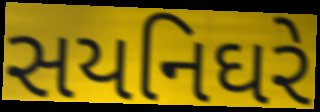
સયનિઘરે